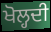
ਖੋਲ੍ਹਦੀ